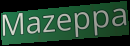
Mazeppa